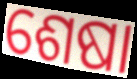
ଶେଷା